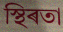
স্থিৰতা